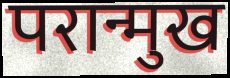
परान्मुख